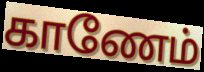
காணேம்